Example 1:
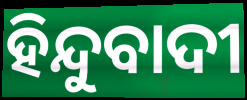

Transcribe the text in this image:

ହିନ୍ଦୁବାଦୀ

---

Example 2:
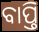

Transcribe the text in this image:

ବାପ୍ତି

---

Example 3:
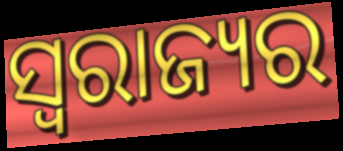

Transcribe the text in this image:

ସ୍ବରାଜ୍ୟର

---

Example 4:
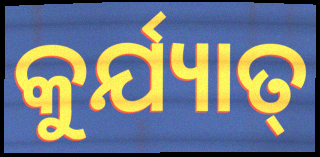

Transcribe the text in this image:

କୁର୍ଯ୍ୟାତ୍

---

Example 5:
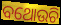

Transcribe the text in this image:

ବଥୋଉଚି